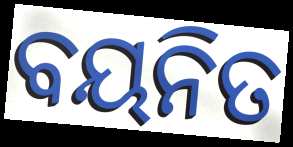
ବୟନିତ